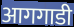
आगगाडी